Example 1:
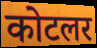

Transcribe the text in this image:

कोटलर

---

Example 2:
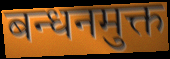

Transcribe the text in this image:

बन्धनमुक्त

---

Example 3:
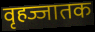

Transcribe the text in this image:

वृहज्जातक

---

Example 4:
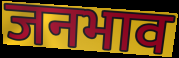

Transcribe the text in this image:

जनभाव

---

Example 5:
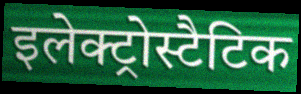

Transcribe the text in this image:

इलेक्ट्रोस्टैटिक